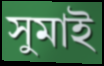
সুমাই